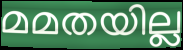
മമതയില്ല